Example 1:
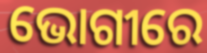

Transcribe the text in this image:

ଭୋଗୀରେ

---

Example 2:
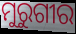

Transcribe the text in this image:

ମୁରୁଗୀର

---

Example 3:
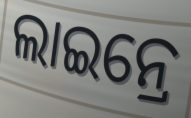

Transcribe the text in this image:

ଲାଇନ୍ରେ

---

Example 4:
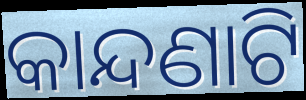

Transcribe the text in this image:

କାନ୍ଦଣାଟି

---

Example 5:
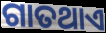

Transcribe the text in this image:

ଗାତଥାଏ